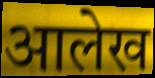
आलेख